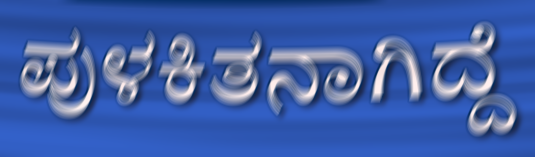
ಪುಳಕಿತನಾಗಿದ್ದೆ